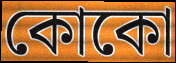
কোকো